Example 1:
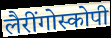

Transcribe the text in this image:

लैरींगोस्कोपी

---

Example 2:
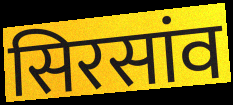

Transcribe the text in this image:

सिरसांव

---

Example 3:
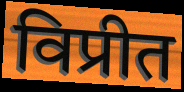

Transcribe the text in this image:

विप्रीत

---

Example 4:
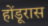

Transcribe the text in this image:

होंडूरास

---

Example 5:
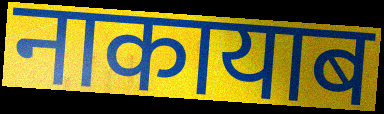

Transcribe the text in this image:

नाकायाब